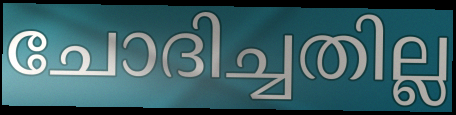
ചോദിച്ചതില്ല